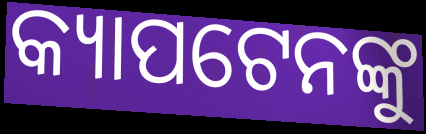
କ୍ୟାପଟେନଙ୍କୁ